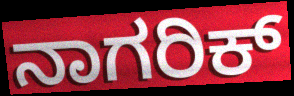
ನಾಗರಿಕ್